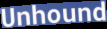
Unhound